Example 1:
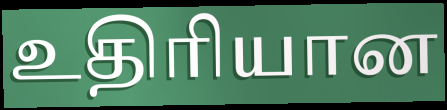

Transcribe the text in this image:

உதிரியான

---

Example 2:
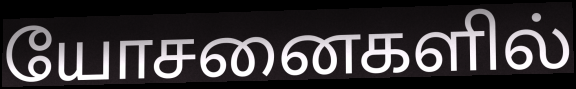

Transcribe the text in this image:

யோசனைகளில்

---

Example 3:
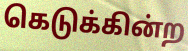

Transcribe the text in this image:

கெடுக்கின்ற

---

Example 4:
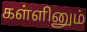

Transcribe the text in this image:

கள்ளினும்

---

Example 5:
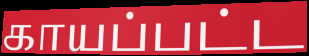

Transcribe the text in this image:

காயப்பட்ட